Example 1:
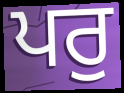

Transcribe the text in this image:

ਪਰੁ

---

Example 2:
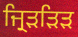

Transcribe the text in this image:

ਜ੍ਰਿੜੜਿੜ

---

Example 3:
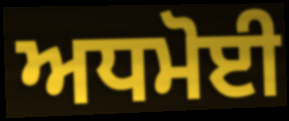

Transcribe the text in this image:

ਅਧਮੋਈ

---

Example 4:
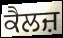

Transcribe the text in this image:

ਕੈਲਜ਼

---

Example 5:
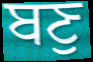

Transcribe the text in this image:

ਬਣੁ